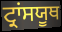
ਟ੍ਰਾਂਸਯੂਥ